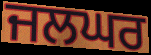
ਜਲਘਰ